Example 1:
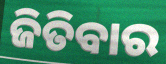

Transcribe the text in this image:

ଜିତିବାର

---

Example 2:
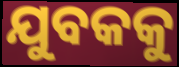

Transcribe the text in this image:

ଯୁବକକୁ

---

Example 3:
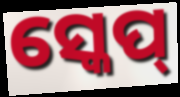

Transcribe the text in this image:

ସ୍କେପ୍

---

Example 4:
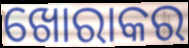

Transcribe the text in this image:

ଖୋରାକର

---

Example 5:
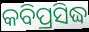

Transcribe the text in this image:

କବିପ୍ରସିଦ୍ଧ